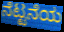
ನೆಟ್ಟನೆಯ